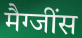
मैग्जींस